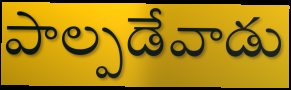
పాల్పడేవాడు